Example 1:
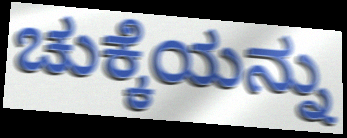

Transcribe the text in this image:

ಚುಕ್ಕೆಯನ್ನು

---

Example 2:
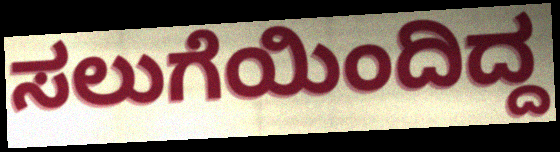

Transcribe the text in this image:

ಸಲುಗೆಯಿಂದಿದ್ದ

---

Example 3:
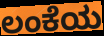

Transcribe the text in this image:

ಲಂಕೆಯ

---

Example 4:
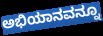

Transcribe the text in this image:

ಅಭಿಯಾನವನ್ನೂ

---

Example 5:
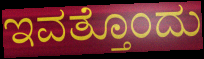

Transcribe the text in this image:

ಇವತ್ತೊಂದು